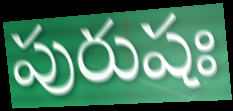
పురుషః